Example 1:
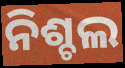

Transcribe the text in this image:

ନିଶ୍ଚଲ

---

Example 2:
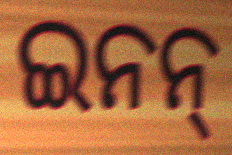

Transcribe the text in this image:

ଇନନ୍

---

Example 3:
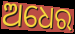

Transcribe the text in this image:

ଅଧେର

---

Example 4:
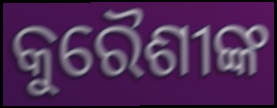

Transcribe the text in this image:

କୁରୈଶୀଙ୍କ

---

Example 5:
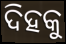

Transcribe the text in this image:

ଦିହକୁ